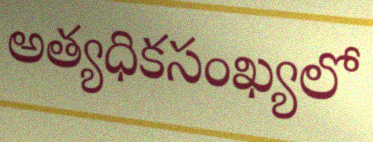
అత్యధికసంఖ్యలో